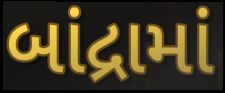
બાંદ્રામાં